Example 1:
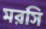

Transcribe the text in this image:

মরসি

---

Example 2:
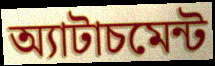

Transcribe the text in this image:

অ্যাটাচমেন্ট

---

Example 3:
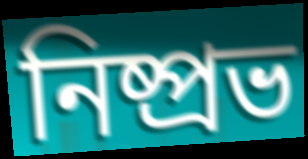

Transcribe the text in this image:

নিষ্প্রভ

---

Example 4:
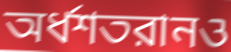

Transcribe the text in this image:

অর্ধশতরানও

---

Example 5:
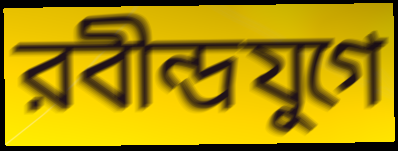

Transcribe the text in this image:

রবীন্দ্রযুগে